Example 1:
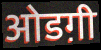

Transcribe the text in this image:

ओडग़ी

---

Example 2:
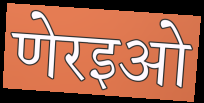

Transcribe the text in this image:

णेरइओ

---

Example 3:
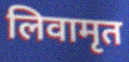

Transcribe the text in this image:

लिवामृत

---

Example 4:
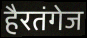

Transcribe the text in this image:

हैरतंगेज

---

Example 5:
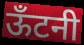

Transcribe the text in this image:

ऊँटनी